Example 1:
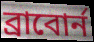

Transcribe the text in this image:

ব্রাবোর্ন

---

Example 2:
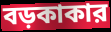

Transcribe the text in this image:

বড়কাকার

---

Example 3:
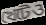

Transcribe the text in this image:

খেটেও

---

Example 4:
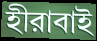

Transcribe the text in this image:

হীরাবাই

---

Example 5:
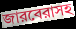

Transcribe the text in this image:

জারবেরাসহ